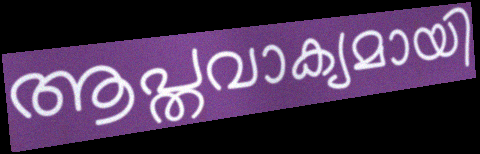
ആപ്തവാക്യമായി